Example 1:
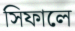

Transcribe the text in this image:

সিফালে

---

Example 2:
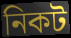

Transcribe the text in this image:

নিকট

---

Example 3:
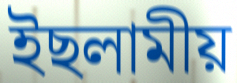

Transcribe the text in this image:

ইছলামীয়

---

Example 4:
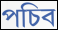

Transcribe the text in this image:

পচিব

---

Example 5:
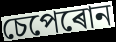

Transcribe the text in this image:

চেপেৰোন